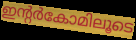
ഇന്റർകോമിലൂടെ